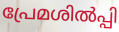
പ്രേമശിൽപ്പി